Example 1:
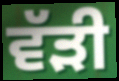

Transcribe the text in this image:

ਵੱੜੀ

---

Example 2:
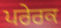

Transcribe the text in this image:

ਪਰੇਰਕ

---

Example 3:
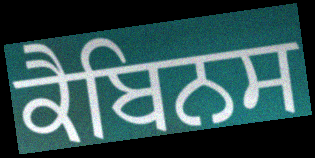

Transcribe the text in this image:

ਕੈਬਿਨਸ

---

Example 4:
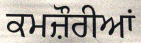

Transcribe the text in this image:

ਕਮਜ਼ੌਰੀਆਂ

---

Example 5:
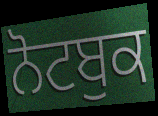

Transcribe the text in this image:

ਨੋਟਬੁਕ